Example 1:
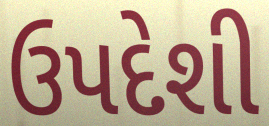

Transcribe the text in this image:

ઉપદેશી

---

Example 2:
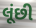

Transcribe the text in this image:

લૂંછી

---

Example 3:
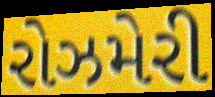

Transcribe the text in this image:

રોઝમેરી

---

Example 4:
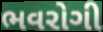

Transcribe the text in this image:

ભવરોગી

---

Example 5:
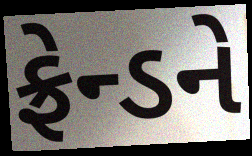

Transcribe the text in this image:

ફ્રેન્ડને